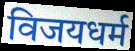
विजयधर्म